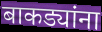
बाकड्यांना